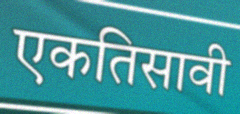
एकतिसावी